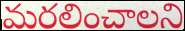
మరలించాలని